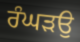
ਰੰਘੜਉ